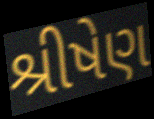
શ્રીષેણ